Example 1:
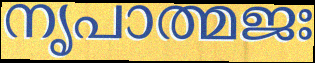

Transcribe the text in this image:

നൃപാത്മജഃ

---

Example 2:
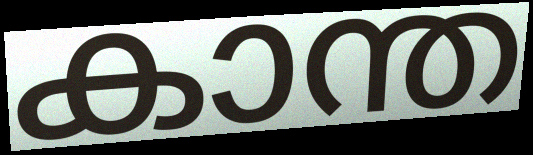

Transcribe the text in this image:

കാന്ത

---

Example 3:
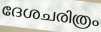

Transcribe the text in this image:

ദേശചരിത്രം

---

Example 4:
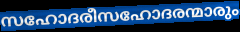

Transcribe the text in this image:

സഹോദരീസഹോദരന്മാരും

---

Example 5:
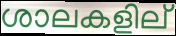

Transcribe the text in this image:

ശാലകളില്